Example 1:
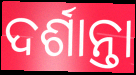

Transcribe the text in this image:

ଦର୍ଶାନ୍ତା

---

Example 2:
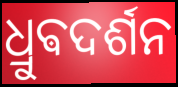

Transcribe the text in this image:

ଧ୍ରୁଵଦର୍ଶନ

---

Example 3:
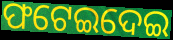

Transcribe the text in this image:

ଫଟେଇଦେଇ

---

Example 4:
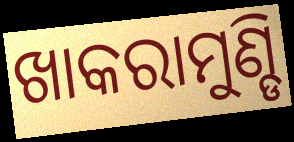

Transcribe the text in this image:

ଖାକରାମୁଣ୍ଡି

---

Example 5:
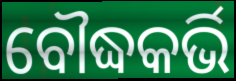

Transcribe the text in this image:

ବୌଦ୍ଧକର୍ଭି